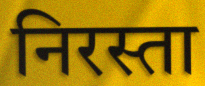
निरस्ता